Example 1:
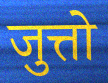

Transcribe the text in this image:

जुत्तो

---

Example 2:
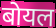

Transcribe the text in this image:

बोयल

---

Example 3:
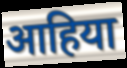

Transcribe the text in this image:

आहिया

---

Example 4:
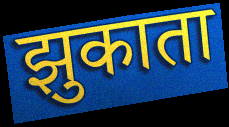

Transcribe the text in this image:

झुकाता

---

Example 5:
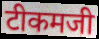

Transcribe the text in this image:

टीकमजी